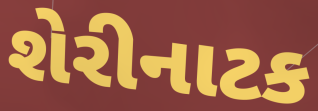
શેરીનાટક